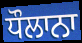
ਧੌਲਾਨਾ